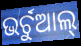
ଭର୍ଚୁଆଲ୍